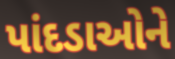
પાંદડાઓને